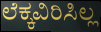
ಲೆಕ್ಕವಿರಿಸಿಲ್ಲ